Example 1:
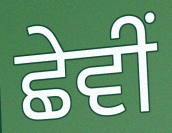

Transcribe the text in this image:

ਛੇਵੀਂ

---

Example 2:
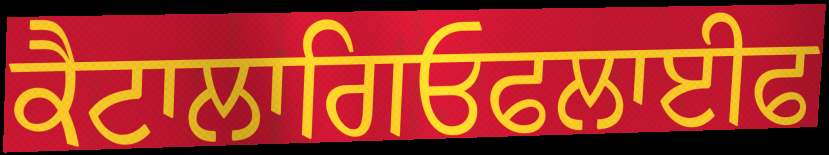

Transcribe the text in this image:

ਕੈਟਾਲਾਗਿਓਫਲਾਈਫ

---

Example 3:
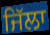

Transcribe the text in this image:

ਜਿੱਲਾ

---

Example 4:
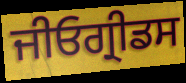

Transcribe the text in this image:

ਜੀਓਗ੍ਰੀਡਸ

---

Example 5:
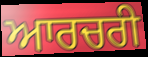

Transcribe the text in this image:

ਆਰਚਰੀ